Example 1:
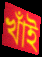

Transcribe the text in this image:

খাঁই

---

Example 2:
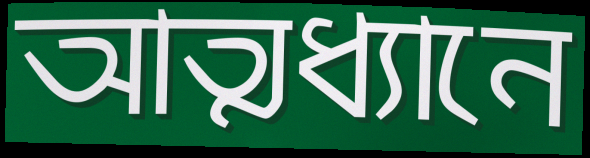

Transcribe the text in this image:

আত্মধ্যানে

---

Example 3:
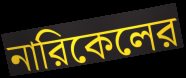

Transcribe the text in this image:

নারিকেলের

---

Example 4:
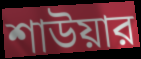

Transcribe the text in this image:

শাউয়ার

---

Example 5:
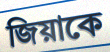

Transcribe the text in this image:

জিয়াকে